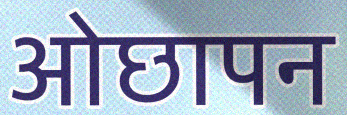
ओछापन